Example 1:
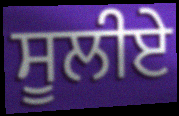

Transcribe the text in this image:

ਸੂਲੀਏ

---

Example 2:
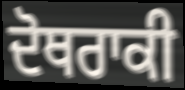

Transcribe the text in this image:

ਦੋਥਰਾਕੀ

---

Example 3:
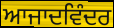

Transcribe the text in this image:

ਆਜਾਦਵਿੰਦਰ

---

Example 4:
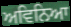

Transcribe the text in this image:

ਅਵਿਨਿਆ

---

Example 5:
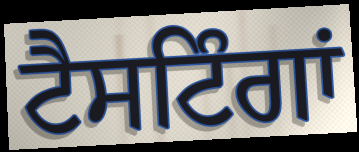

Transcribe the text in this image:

ਟੈਸਟਿੰਗਾਂ